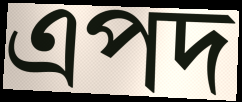
এপদ